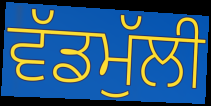
ਵੱਡਮੁੱਲੀ